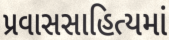
પ્રવાસસાહિત્યમાં